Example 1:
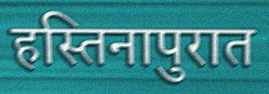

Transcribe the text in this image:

हस्तिनापुरात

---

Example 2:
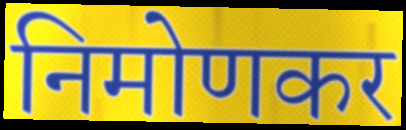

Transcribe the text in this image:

निमोणकर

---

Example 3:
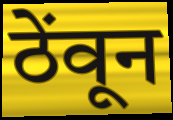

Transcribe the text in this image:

ठेंवून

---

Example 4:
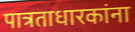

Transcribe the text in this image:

पात्रताधारकांना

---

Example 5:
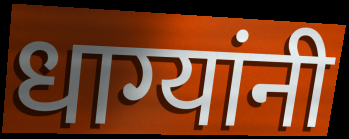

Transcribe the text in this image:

धाग्यांनी